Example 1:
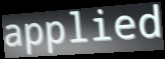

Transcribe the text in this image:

applied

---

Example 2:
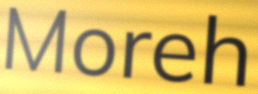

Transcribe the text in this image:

Moreh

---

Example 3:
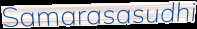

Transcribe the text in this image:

Samarasasudhi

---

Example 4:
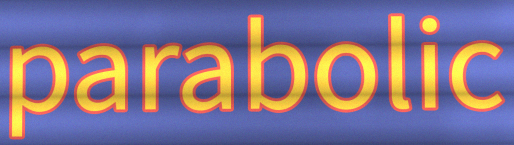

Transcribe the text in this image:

parabolic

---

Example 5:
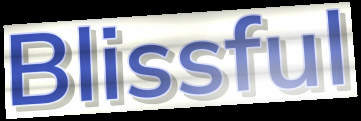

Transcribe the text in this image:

Blissful